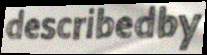
describedby